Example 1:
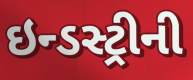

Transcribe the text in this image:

ઇન્ડસ્ટ્રીની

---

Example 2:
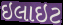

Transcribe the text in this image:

ઇલાઇટ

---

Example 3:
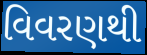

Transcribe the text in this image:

વિવરણથી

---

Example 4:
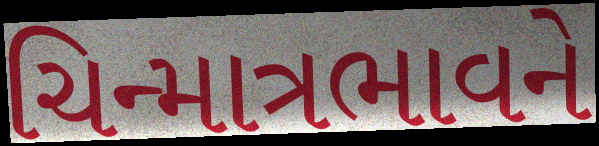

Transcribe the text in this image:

ચિન્માત્રભાવને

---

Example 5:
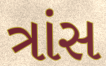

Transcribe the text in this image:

ત્રાંસ